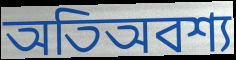
অতিঅবশ্য